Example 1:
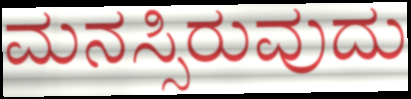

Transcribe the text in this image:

ಮನಸ್ಸಿರುವುದು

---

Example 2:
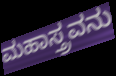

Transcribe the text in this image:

ಮಹಾಸ್ತ್ರವನು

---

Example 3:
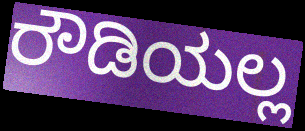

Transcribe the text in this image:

ರೌಡಿಯಲ್ಲ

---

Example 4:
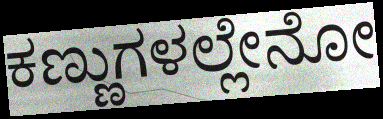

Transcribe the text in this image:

ಕಣ್ಣುಗಳಲ್ಲೇನೋ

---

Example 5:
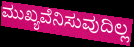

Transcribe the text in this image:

ಮುಖ್ಯವೆನಿಸುವುದಿಲ್ಲ